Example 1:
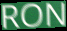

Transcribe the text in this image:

RON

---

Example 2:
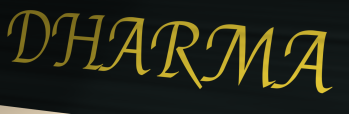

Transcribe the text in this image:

DHARMA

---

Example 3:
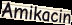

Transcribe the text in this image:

Amikacin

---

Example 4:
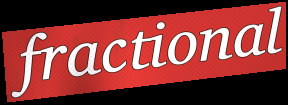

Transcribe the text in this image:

fractional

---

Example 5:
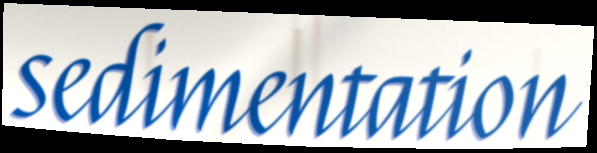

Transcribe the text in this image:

sedimentation